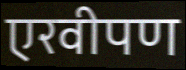
एरवीपण